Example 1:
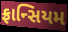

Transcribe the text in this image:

ફ્રાન્સિયમ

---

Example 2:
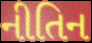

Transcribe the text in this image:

નીતિન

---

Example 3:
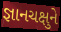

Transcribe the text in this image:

જ્ઞાનચક્ષુને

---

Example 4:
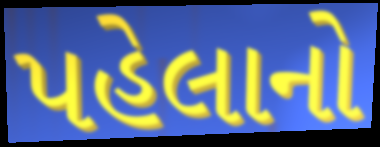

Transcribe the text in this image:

પહેલાનો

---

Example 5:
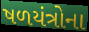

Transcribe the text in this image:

ષળયંત્રોના